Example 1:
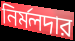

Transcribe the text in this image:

নির্মলদার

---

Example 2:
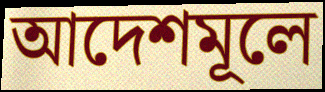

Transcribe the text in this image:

আদেশমূলে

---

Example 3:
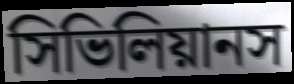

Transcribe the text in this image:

সিভিলিয়ানস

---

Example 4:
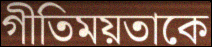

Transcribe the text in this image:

গীতিময়তাকে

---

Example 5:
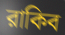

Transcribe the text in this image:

রাকিব